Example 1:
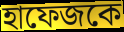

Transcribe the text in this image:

হাফেজকে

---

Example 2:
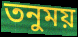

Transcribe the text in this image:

তনুময়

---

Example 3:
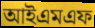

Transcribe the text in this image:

আইএমএফ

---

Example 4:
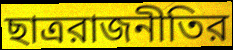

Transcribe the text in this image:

ছাত্ররাজনীতির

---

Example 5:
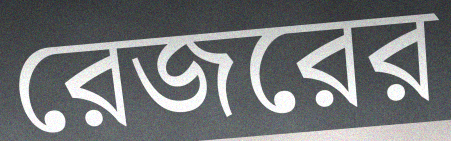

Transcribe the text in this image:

রেজরের